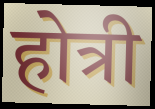
होत्री